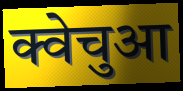
क्वेचुआ